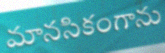
మానసికంగాను